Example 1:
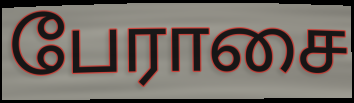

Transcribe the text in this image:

பேராசை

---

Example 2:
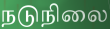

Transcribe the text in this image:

நடுநிலை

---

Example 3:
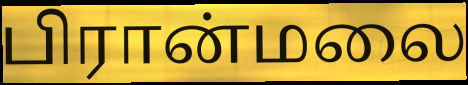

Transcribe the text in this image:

பிரான்மலை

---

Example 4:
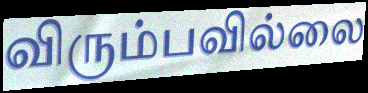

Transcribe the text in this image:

விரும்பவில்லை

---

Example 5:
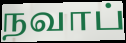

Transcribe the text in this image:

நவாப்